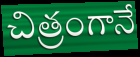
చిత్రంగానే